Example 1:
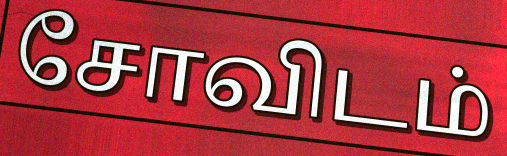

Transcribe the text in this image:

சோவிடம்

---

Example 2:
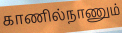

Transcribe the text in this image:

காணில்நாணும்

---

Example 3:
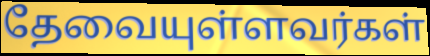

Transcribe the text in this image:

தேவையுள்ளவர்கள்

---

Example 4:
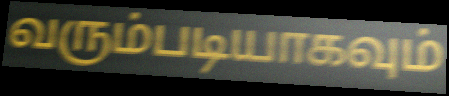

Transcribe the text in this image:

வரும்படியாகவும்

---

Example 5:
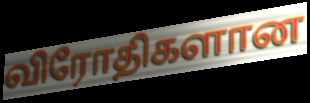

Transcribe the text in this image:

விரோதிகளான